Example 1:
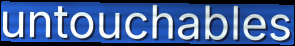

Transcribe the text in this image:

untouchables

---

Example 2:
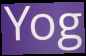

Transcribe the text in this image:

Yog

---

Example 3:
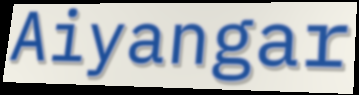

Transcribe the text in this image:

Aiyangar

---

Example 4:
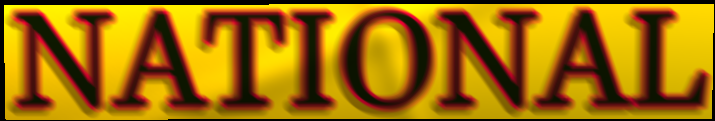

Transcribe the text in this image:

NATIONAL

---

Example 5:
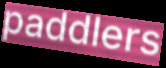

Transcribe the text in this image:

paddlers